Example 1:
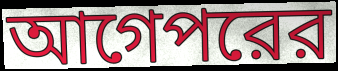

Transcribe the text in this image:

আগেপরের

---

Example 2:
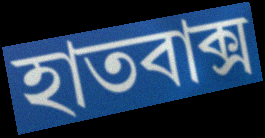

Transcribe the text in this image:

হাতবাক্স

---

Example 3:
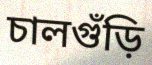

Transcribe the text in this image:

চালগুঁড়ি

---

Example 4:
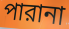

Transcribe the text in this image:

পারানা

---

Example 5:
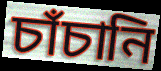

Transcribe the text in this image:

চাঁচানি